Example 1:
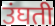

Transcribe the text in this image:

उंघती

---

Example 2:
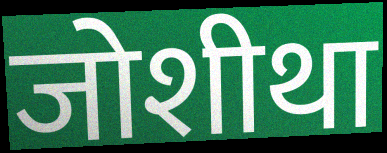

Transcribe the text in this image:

जोशीथा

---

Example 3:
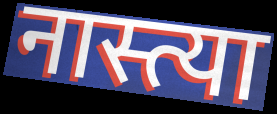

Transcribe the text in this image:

नास्त्या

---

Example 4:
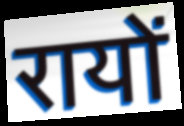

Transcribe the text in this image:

रायों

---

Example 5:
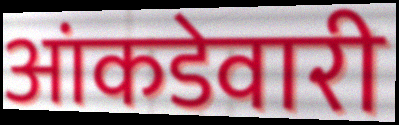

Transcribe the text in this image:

आंकडेवारी